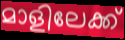
മാളിലേക്ക്